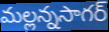
మల్లన్నసాగర్